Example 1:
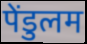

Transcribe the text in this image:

पेंडुलम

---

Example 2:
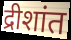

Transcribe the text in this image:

द्रीशांत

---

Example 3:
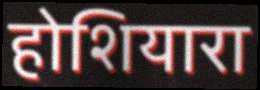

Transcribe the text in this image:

होशियारा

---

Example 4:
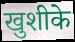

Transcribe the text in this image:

खुशीके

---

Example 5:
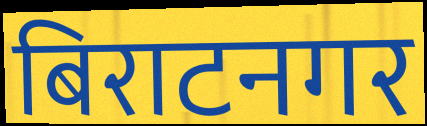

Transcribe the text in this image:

बिराटनगर